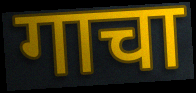
गाचा